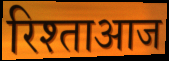
रिश्ताआज